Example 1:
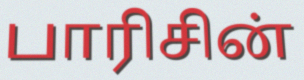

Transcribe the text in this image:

பாரிசின்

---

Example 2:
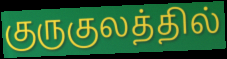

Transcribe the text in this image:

குருகுலத்தில்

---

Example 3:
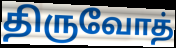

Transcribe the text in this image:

திருவோத்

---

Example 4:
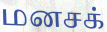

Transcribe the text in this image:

மனசக்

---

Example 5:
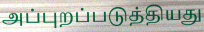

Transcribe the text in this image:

அப்புறப்படுத்தியது